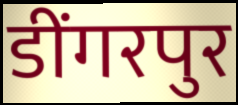
डींगरपुर